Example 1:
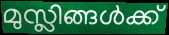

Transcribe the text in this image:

മുസ്ലിങ്ങൾക്ക്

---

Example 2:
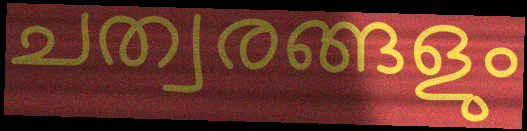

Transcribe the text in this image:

ചത്വരങ്ങളും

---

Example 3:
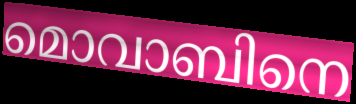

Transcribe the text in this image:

മൊവാബിനെ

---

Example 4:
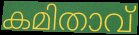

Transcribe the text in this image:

കമിതാവ്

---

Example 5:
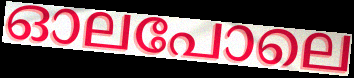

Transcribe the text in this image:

ഓലപോലെ